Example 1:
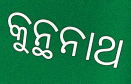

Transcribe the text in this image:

କୁନ୍ଥନାଥ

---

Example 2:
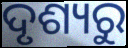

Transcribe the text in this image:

ଦୃଶ୍ୟରୁ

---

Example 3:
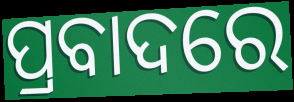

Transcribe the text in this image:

ପ୍ରବାଦରେ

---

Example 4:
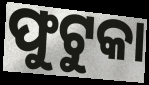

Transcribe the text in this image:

ଫୁଟୁକା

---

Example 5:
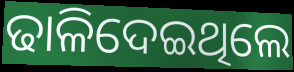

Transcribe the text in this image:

ଢାଳିଦେଇଥିଲେ